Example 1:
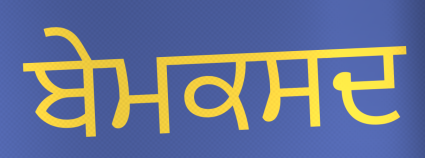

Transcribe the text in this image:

ਬੇਮਕਸਦ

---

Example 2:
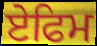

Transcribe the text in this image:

ਏਫਿਮ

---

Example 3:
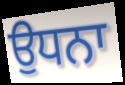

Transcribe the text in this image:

ਉਧਨਾ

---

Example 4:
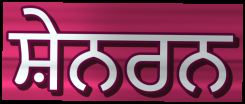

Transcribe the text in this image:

ਸ਼ੇਨਰਨ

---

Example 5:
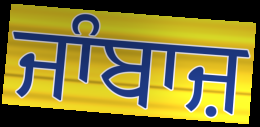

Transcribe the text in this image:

ਜਾੰਬਾਜ਼